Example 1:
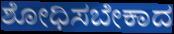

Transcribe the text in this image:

ಶೋಧಿಸಬೇಕಾದ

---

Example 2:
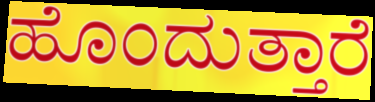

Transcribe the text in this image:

ಹೊಂದುತ್ತಾರೆ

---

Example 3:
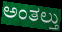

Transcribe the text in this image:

ಅಂತಲ್ತು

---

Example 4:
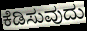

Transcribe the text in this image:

ಕೆಡಿಸುವುದು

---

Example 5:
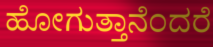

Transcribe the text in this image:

ಹೋಗುತ್ತಾನೆಂದರೆ